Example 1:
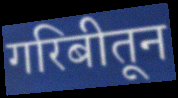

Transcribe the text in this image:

गरिबीतून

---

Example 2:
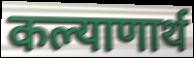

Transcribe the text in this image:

कल्याणार्थ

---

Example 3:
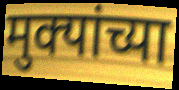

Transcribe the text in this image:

मुक्यांच्या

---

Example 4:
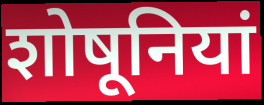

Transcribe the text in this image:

शोषूनियां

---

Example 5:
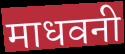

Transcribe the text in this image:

माधवनी